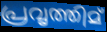
പ്രവൃത്തിമ്